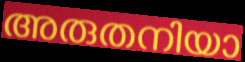
അരുതനിയാ